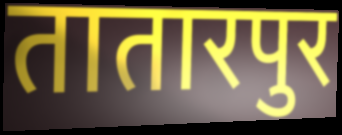
तातारपुर